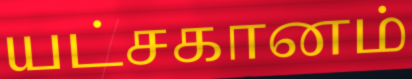
யட்சகானம்